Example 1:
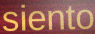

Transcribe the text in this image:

siento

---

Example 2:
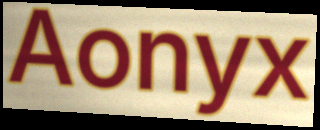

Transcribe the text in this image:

Aonyx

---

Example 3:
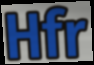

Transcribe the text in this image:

Hfr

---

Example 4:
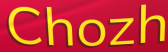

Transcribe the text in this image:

Chozh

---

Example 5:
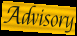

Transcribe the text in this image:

Advisory